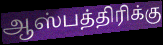
ஆஸ்பத்திரிக்கு